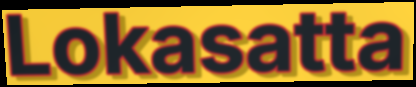
Lokasatta